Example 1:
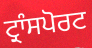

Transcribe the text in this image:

ਟ੍ਰਾੰਸਪੋਰਟ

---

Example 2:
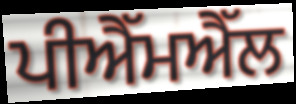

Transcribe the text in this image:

ਪੀਐੱਮਐੱਲ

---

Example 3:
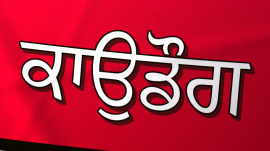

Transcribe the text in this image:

ਕਾਉਡੌਗ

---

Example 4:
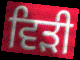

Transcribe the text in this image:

ਵਿੜੀ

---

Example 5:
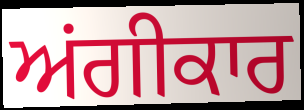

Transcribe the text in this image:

ਅਂਗੀਕਾਰ